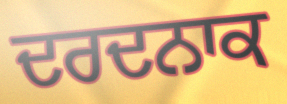
ਦਰਦਨਾਕ